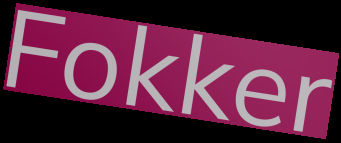
Fokker